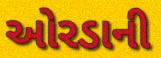
ઓરડાની